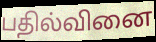
பதில்வினை